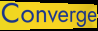
Converge